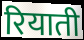
रियाती